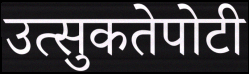
उत्सुकतेपोटी